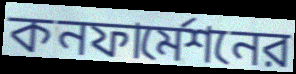
কনফার্মেশনের